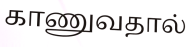
காணுவதால்